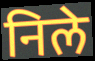
निले